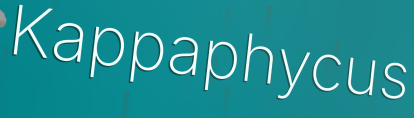
Kappaphycus